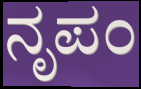
ನೃಪಂ